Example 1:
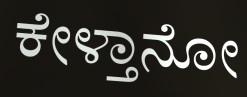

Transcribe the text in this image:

ಕೇಳ್ತಾನೋ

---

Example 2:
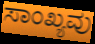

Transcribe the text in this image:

ಸಾಂಖ್ಯವು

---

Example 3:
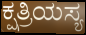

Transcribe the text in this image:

ಕ್ಷತ್ರಿಯಸ್ಯ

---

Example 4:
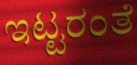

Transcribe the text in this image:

ಇಟ್ಟರಂತೆ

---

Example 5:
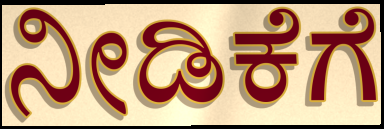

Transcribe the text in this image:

ನೀಡಿಕೆಗೆ